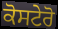
ਕੋਸਟੇਰੋ